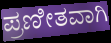
ಪ್ರಣೀತವಾಗಿ